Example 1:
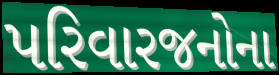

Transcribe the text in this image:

પરિવારજનોના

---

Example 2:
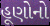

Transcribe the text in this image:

હૂણોનો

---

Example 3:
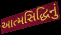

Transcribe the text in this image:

આત્મસિદ્ધિનું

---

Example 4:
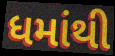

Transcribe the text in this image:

ધમાંથી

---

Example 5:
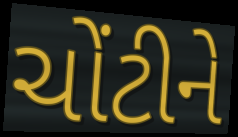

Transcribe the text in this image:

ચોંટીને